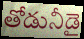
తోడునీడై